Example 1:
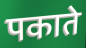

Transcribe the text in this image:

पकाते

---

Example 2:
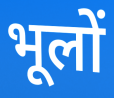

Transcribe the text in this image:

भूलों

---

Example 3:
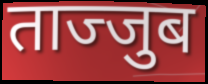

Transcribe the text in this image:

ताज्जुब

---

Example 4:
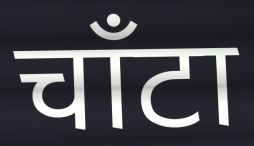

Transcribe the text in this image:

चाँटा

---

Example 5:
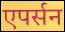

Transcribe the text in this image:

एपर्सन